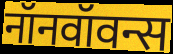
नॉनवॉवन्स